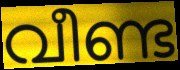
വീണ്ട